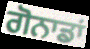
ਗੋਨਾਡਾਂ